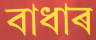
বাধাৰ